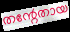
തന്റേതായ